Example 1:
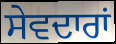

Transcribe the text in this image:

ਸੇਵਦਾਰਾਂ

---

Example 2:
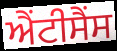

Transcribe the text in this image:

ਐਂਟੀਸੈਂਸ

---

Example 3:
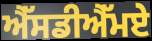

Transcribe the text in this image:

ਐੱਸਡੀਐੱਮਏ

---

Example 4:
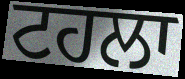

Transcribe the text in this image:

ਟਹਲਾ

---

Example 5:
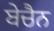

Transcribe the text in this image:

ਬੇਚੈਨ